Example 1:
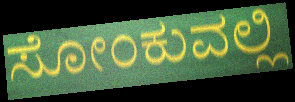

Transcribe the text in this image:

ಸೋಂಕುವಲ್ಲಿ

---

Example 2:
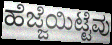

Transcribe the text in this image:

ಹೆಜ್ಜೆಯಿಟ್ಟೆವು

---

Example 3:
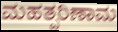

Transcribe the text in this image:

ಮಹತ್ಪರಿಣಾಮ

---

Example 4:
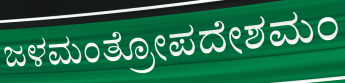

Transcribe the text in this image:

ಜಳಮಂತ್ರೋಪದೇಶಮಂ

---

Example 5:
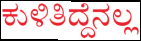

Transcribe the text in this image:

ಕುಳಿತಿದ್ದೆನಲ್ಲ